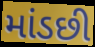
માંડછી